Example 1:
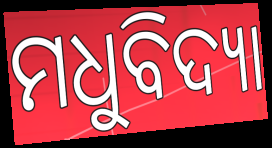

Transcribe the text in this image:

ମଧୁବିଦ୍ୟା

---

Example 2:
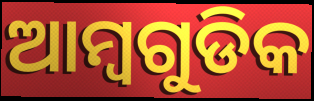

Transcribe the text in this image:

ଆମ୍ବଗୁଡିକ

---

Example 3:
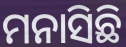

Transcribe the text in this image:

ମନାସିଛି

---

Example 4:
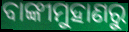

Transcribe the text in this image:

ବାଙ୍କୀମୁହାଣରୁ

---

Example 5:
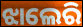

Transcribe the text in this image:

ଝାଲେରି